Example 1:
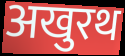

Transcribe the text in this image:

अखुरथ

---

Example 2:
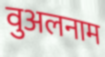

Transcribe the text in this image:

वुअलनाम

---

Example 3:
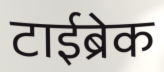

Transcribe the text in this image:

टाईब्रेक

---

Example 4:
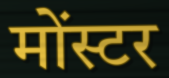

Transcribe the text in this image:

मोंस्टर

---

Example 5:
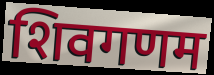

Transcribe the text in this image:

शिवगणम